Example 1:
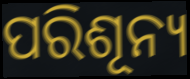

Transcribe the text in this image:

ପରିଶୂନ୍ୟ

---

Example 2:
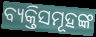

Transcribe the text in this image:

ବ୍ୟକ୍ତିସମୂହଙ୍କ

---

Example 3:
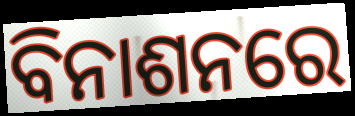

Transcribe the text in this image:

ବିନାଶନରେ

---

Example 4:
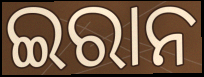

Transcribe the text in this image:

ଇରାନ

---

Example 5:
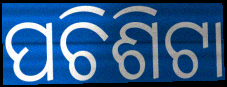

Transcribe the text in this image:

ପଚିଶିଟା